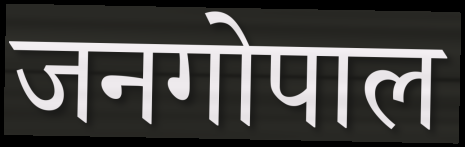
जनगोपाल